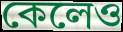
কেলেও